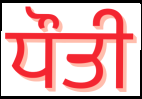
ਧੌਤੀ